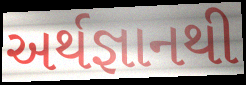
અર્થજ્ઞાનથી